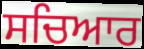
ਸਚਿਆਰ